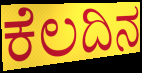
ಕೆಲದಿನ